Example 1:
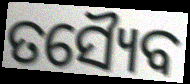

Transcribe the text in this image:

ତସ୍ୟୈବ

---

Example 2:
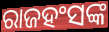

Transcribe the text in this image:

ରାଜହଂସଙ୍କ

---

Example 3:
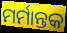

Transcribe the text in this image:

ମର୍ମାନ୍ତକ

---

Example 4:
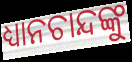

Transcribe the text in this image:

ଧ୍ୟାନଚାନ୍ଦଙ୍କୁ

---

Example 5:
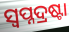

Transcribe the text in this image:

ସ୍ୱପ୍ନଦ୍ରଷ୍ଟା